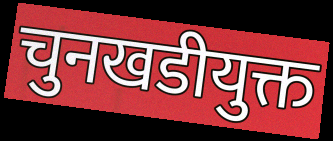
चुनखडीयुक्त